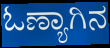
ಓಣ್ಯಾಗಿನ